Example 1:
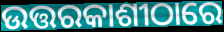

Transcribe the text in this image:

ଉତ୍ତରକାଶୀଠାରେ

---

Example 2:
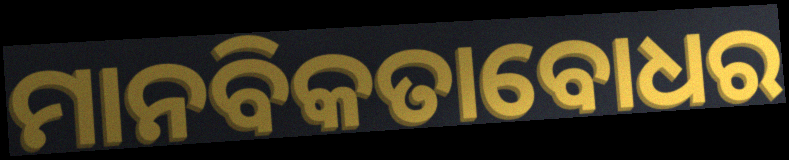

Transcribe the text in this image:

ମାନବିକତାବୋଧର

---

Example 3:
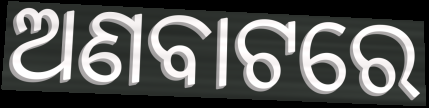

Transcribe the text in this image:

ଅଣବାଟରେ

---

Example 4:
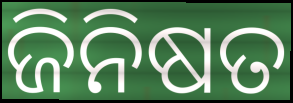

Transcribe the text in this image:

ଜିନିଷତ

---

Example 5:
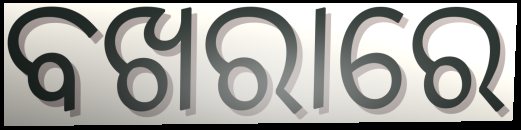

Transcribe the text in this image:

ବଖରାରେ